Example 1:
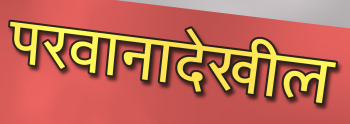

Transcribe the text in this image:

परवानादेखील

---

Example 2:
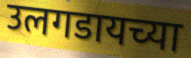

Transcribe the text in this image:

उलगडायच्या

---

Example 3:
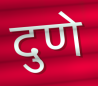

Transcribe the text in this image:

दुणे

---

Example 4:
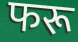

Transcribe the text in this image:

फरू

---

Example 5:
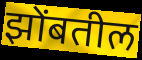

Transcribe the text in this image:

झोंबतील